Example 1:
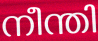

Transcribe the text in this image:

നീന്തി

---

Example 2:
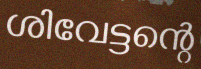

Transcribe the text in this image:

ശിവേട്ടന്റെ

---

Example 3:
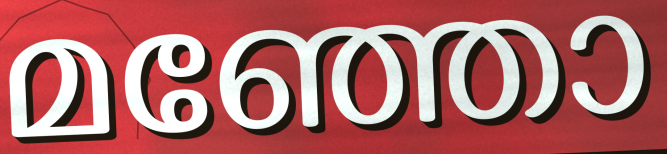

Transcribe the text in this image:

മഞ്ഞോ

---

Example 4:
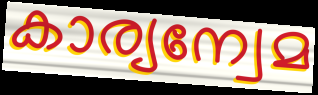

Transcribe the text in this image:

കാര്യന്വേമ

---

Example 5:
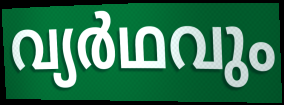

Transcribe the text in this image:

വ്യർഥവും